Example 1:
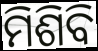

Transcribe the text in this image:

ମିଶିବି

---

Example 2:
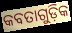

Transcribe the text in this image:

କବତାଗୁଡ଼ିକ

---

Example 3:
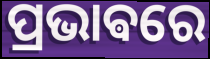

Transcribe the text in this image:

ପ୍ରଭାଵରେ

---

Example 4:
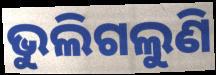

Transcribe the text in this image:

ଭୁଲିଗଲୁଣି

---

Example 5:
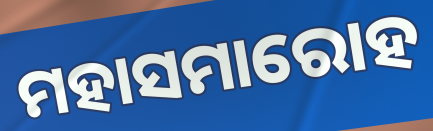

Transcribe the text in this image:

ମହାସମାରୋହ